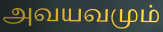
அவயவமும்